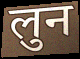
लुन